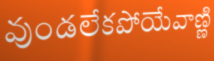
వుండలేకపోయేవాణ్ణి